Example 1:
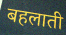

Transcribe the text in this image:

बहलाती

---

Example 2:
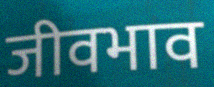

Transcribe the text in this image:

जीवभाव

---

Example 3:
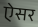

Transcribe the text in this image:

ऐसर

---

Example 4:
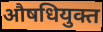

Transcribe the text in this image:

औषधियुक्त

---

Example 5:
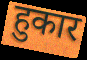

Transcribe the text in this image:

हुकार